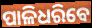
ପାଳିଧରିବେ